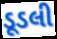
ડૂડલી